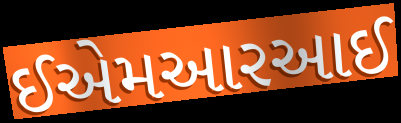
ઈએમઆરઆઈ